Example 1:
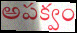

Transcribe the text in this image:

అపక్వం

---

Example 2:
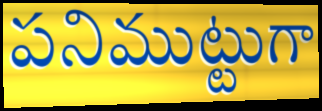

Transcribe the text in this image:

పనిముట్టుగా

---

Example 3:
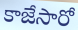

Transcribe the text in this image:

కాజేసారో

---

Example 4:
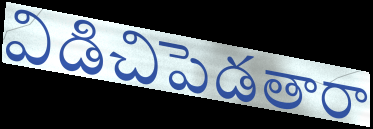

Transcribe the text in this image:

విడిచిపెడతారా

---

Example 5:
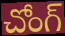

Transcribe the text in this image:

చోంగ్